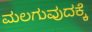
ಮಲಗುವುದಕ್ಕೆ